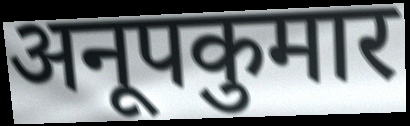
अनूपकुमार